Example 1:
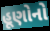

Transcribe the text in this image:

હૂણોનો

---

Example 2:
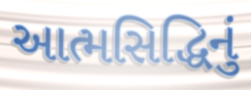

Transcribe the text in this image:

આત્મસિદ્ધિનું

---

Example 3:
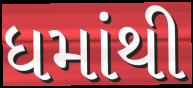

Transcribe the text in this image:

ધમાંથી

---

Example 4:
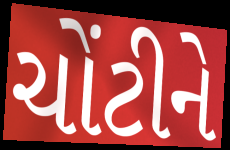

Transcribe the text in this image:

ચોંટીને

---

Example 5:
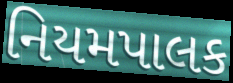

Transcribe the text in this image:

નિયમપાલક